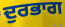
ਦੁਰਭਾਗ